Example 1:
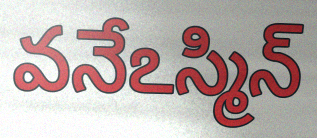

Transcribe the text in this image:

వనేఽస్మిన్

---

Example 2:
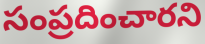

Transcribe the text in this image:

సంప్రదించారని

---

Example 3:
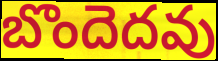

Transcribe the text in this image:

బొందెదవు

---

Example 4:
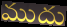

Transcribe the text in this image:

ముదు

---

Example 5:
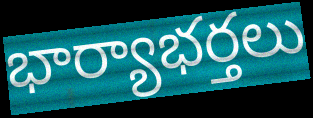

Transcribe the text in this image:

భార్యాభర్తలు